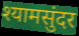
श्यामसुंदर